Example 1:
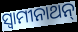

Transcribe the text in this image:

ସ୍ୱାମୀନାଥନ୍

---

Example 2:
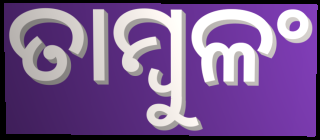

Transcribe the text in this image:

ତାମ୍ବୁଳଂ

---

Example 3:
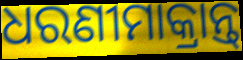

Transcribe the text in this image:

ଧରଣୀମାକ୍ରାନ୍ତ୍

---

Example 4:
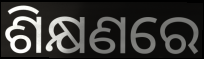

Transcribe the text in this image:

ଶିକ୍ଷଣରେ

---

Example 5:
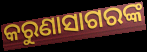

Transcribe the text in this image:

କରୁଣାସାଗରଙ୍କ